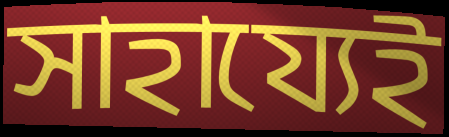
সাহায্যেই